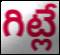
గిట్లే